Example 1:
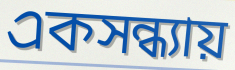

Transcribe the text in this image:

একসন্ধ্যায়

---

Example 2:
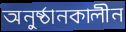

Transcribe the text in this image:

অনুষ্ঠানকালীন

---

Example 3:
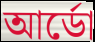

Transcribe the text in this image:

আর্ডো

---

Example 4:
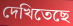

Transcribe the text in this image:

দেখিতেছে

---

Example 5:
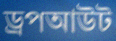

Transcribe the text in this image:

ড্রপআউট